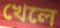
খেলে